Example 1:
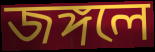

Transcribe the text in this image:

জঙ্গলে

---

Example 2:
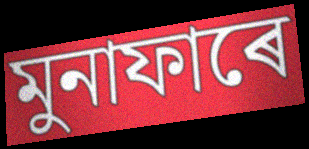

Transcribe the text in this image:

মুনাফাৰে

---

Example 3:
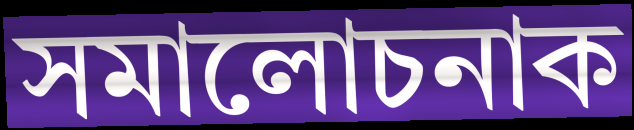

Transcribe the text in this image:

সমালোচনাক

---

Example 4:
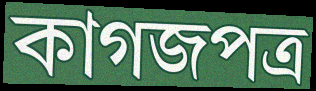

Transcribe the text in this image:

কাগজপত্ৰ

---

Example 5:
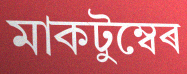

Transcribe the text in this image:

মাকটুম্বেৰ